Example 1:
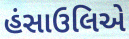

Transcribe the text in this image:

હંસાઉલિએ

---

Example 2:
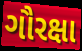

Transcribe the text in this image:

ગૌરક્ષા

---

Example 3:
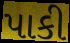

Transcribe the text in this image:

પાકી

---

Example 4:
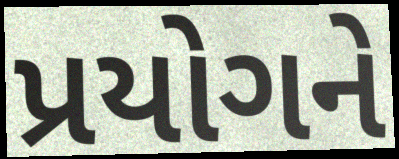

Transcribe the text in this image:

પ્રયોગને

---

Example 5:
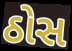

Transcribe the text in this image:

ઠોસ